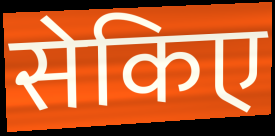
सेकिए